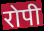
रोपी